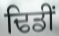
ਢਿਡੀਂ